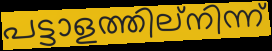
പട്ടാളത്തില്നിന്ന്